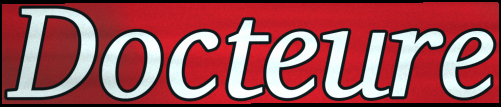
Docteure